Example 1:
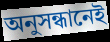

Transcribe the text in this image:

অনুসন্ধানেই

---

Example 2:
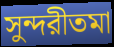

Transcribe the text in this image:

সুন্দরীতমা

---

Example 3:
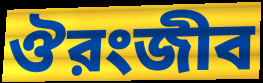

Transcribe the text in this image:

ঔরংজীব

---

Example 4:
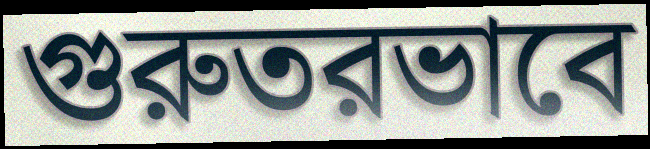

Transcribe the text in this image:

গুরুতরভাবে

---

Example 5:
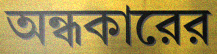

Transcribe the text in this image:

অন্ধকারের